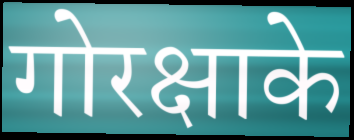
गोरक्षाके